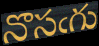
నొసఁగు